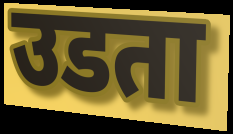
उडता